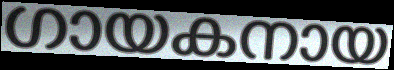
ഗായകനായ